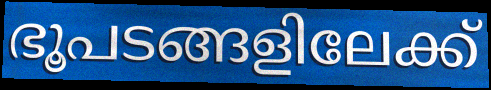
ഭൂപടങ്ങളിലേക്ക്